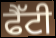
ਫੈੱਟੀ